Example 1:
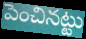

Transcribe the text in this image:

పెంచినట్టు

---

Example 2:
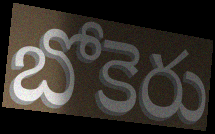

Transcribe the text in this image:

బోకెరు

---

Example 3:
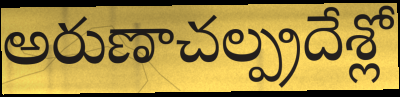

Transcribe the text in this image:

అరుణాచల్ప్రదేశ్లో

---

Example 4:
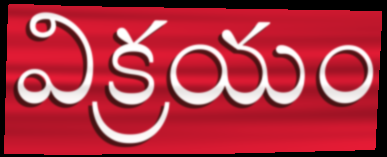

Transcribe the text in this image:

విక్రయం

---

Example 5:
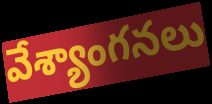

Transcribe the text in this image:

వేశ్యాంగనలు